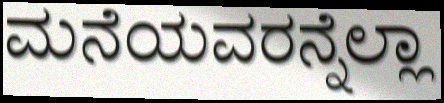
ಮನೆಯವರನ್ನೆಲ್ಲಾ